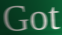
Got